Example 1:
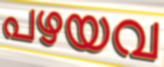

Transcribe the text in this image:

പഴയവ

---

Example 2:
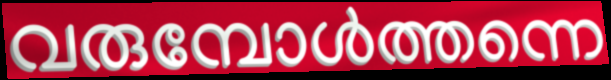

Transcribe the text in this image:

വരുമ്പോൾത്തന്നെ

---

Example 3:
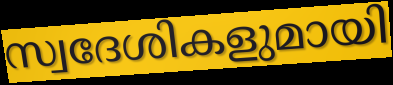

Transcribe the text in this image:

സ്വദേശികളുമായി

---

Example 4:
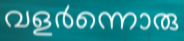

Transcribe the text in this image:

വളർന്നൊരു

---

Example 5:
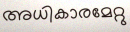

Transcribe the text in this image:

അധികാരമേറ്റു